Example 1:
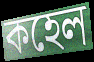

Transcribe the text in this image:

কহেল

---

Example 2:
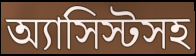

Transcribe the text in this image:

অ্যাসিস্টসহ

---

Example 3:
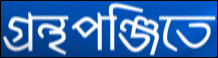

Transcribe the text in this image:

গ্রন্থপঞ্জিতে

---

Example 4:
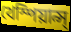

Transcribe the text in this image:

থেস্পিয়ান্স্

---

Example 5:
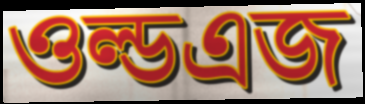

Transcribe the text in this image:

ওল্ডএজ